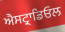
ਐਸਟ੍ਰਾਡਿਓਲ